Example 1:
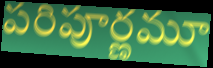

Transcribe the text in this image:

పరిపూర్ణమూ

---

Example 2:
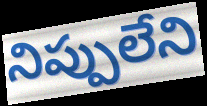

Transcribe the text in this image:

నిప్పులేని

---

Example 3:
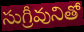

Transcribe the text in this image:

సుగ్రీవునితో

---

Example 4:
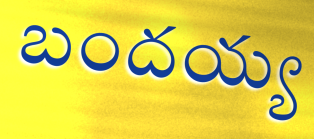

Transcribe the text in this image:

బందయ్య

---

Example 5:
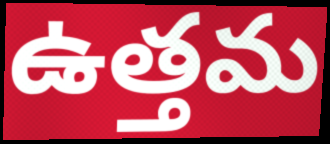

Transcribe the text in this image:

ఉత్తమ